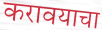
करावयाचा